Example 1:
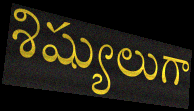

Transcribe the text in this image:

శిష్యులుగా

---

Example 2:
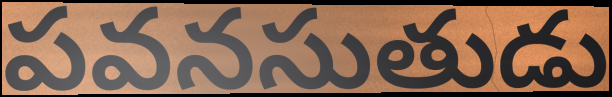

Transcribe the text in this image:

పవనసుతుడు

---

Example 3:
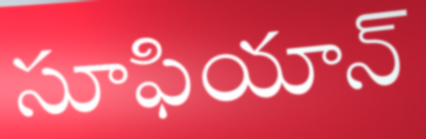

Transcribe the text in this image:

సూఫియాన్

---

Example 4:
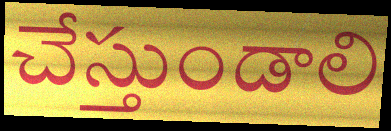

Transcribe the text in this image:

చేస్తుండాలి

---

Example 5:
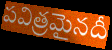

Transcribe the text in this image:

పవిత్రమైనదీ